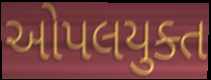
ઓપલયુક્ત